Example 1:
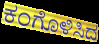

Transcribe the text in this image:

ಕಂಗೊಳಿಸಿದ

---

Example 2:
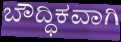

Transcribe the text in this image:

ಬೌದ್ಧಿಕವಾಗಿ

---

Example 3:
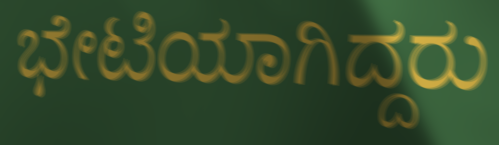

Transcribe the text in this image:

ಭೇಟಿಯಾಗಿದ್ದರು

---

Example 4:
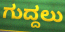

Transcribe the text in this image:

ಗುದ್ದಲು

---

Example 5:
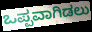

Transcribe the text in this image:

ಒಪ್ಪವಾಗಿಡಲು